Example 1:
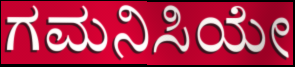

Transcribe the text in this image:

ಗಮನಿಸಿಯೇ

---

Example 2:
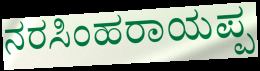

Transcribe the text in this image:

ನರಸಿಂಹರಾಯಪ್ಪ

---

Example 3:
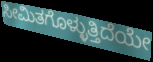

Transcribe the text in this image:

ಸೀಮಿತಗೊಳ್ಳುತ್ತಿದೆಯೇ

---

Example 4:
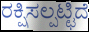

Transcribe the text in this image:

ರಕ್ಷಿಸಲ್ಪಟ್ಟಿದೆ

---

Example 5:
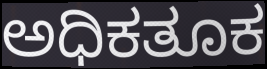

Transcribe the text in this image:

ಅಧಿಕತೂಕ